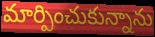
మార్పించుకున్నాను